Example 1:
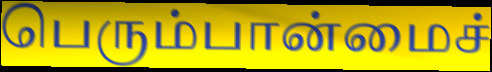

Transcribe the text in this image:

பெரும்பான்மைச்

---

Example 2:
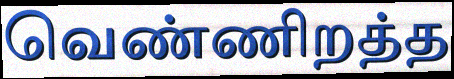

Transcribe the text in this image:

வெண்ணிறத்த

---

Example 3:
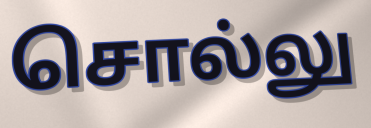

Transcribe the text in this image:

சொல்லு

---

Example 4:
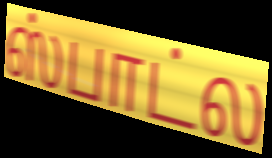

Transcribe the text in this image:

ஸ்பாட்ல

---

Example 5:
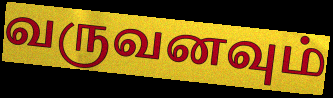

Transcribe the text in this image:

வருவனவும்